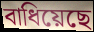
বাধিয়েছে